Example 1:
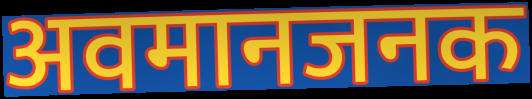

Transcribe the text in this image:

अवमानजनक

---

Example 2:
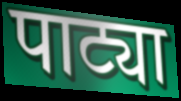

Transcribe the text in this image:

पाट्या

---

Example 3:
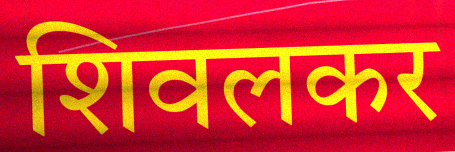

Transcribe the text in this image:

शिवलकर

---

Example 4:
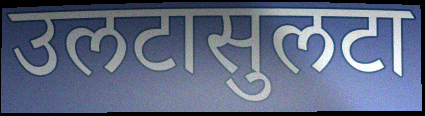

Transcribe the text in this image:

उलटासुलटा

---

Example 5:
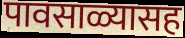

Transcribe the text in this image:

पावसाळ्यासह